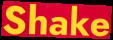
Shake